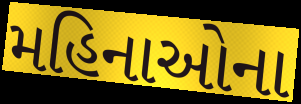
મહિનાઓના